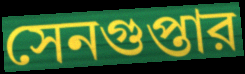
সেনগুপ্তার